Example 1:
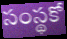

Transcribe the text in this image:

సంస్థకో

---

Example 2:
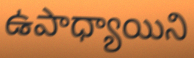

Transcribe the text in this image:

ఉపాధ్యాయిని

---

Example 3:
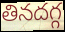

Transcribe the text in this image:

తినదగ్గ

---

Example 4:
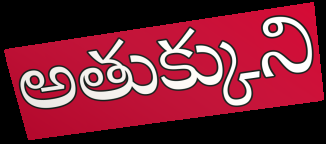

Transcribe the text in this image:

అతుక్కుని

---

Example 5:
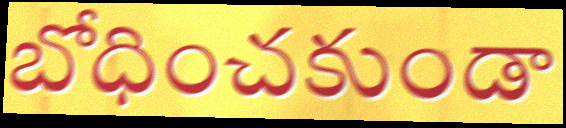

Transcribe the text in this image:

బోధించకుండా